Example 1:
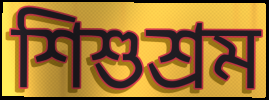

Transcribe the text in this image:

শিশুশ্রম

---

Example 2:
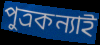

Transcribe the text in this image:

পুত্রকন্যাই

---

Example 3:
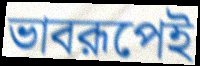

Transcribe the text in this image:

ভাবরূপেই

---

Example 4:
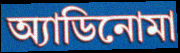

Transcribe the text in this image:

অ্যাডিনোমা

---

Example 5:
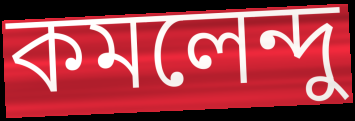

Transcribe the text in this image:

কমলেন্দু